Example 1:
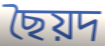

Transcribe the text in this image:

ছৈয়দ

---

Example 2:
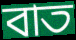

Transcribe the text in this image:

বাত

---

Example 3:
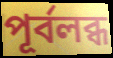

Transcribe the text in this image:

পূৰ্বলব্ধ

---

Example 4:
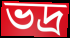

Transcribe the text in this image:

ভদ্ৰ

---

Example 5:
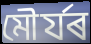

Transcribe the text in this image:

মৌৰ্যৰ